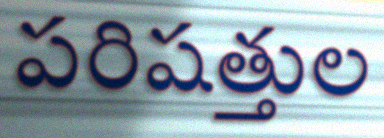
పరిషత్తుల